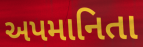
અપમાનિતા